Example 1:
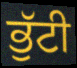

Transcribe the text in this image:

ਭੁੱਟੀ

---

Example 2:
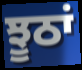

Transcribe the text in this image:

ਝੂਠਾਂ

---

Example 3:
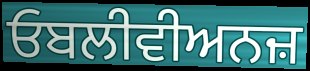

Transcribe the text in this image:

ਓਬਲੀਵੀਅਨਜ਼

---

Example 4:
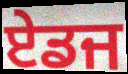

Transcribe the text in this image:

ਏਡਜ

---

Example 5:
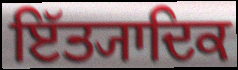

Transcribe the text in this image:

ਇੱਤ੍ਯਾਦਿਕ